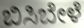
ಬಿಸಿಬೇಳೆ